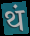
थं